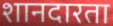
शानदारता